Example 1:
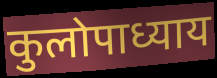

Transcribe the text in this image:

कुलोपाध्याय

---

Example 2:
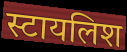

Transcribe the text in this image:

स्टायलिश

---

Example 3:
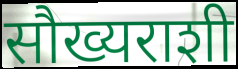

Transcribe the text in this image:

सौख्यराशी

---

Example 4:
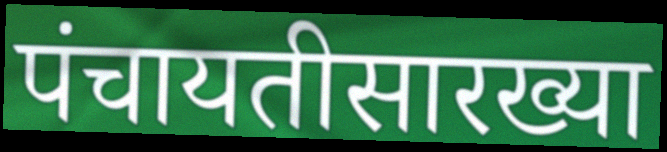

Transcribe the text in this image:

पंचायतीसारख्या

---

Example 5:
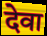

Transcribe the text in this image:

देवा